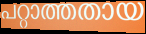
പറ്റാത്തതായ